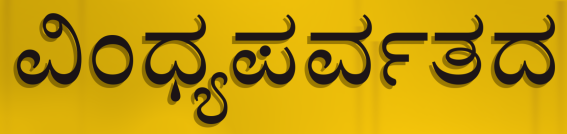
ವಿಂಧ್ಯಪರ್ವತದ